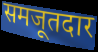
समजूतदार